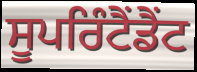
ਸੂਪਰਿੰਟੈਂਡੈਂਟ